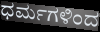
ಧರ್ಮಗಳಿಂದ